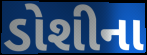
ડોશીના